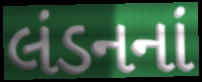
લંડનનાં